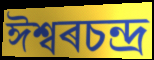
ঈশ্বৰচন্দ্ৰ